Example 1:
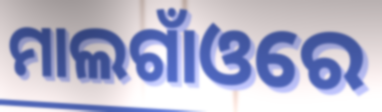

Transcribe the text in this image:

ମାଲଗାଁଓରେ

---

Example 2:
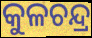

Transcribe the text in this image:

କୁଳଚନ୍ଦ୍ର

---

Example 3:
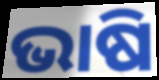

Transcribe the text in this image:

ଭାଷି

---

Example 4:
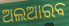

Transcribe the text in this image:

ଅଲଆରବ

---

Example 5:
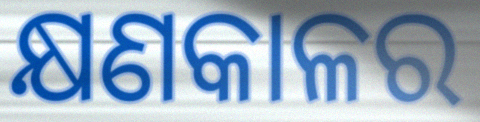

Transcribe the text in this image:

କ୍ଷଣକାଳର